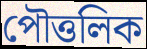
পৌত্তলিক